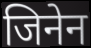
जिनेन